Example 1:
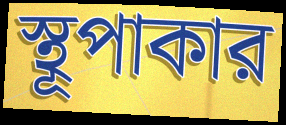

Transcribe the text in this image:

স্থূপাকার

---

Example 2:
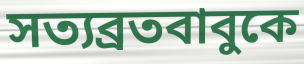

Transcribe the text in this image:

সত্যব্রতবাবুকে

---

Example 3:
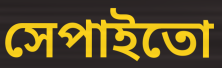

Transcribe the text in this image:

সেপাইতো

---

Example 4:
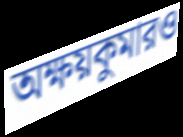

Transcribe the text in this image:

অক্ষয়কুমারও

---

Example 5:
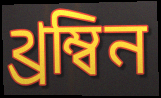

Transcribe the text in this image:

থ্রম্বিন